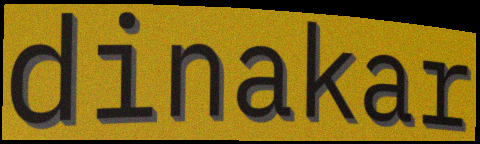
dinakar